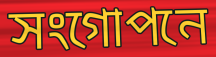
সংগোপনে